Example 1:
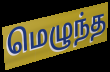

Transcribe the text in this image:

மெழுந்த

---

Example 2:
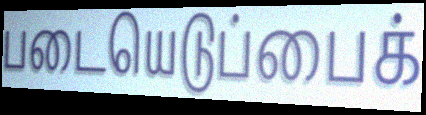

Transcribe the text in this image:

படையெடுப்பைக்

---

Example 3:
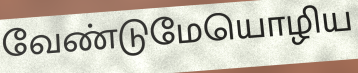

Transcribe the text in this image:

வேண்டுமேயொழிய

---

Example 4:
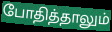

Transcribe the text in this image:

போதித்தாலும்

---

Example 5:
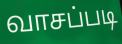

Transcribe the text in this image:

வாசப்படி